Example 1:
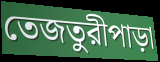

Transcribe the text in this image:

তেজতুরীপাড়া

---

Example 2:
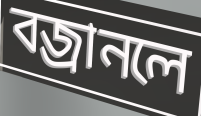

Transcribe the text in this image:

বজ্রানলে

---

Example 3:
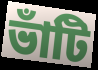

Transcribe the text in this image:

ভাঁটি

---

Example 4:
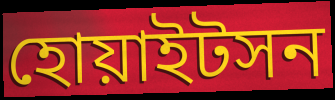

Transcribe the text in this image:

হোয়াইটসন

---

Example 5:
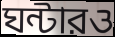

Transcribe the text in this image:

ঘন্টারও